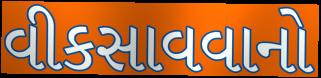
વીકસાવવાનો